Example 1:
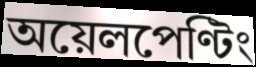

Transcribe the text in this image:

অয়েলপেণ্টিং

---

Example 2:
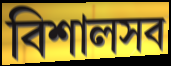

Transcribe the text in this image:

বিশালসব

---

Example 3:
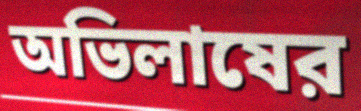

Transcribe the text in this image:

অভিলাষের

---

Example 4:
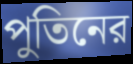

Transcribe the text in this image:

পুতিনের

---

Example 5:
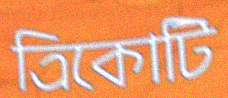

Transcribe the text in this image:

ত্রিকোটি